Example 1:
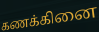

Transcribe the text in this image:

கணக்கினை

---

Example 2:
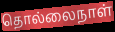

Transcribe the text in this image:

தொல்லைநாள்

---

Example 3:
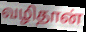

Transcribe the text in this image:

வழிதான்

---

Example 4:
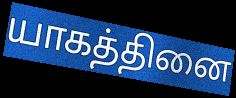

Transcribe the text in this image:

யாகத்தினை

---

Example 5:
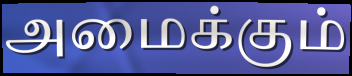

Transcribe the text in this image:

அமைக்கும்